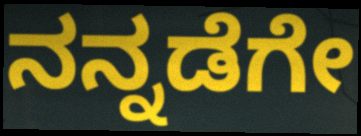
ನನ್ನಡೆಗೇ